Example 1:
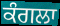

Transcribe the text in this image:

ਕੰਗਲਾ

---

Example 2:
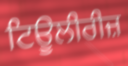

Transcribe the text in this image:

ਟਿਊਲੀਰੀਜ਼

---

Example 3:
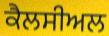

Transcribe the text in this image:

ਕੈਲਸੀਅਲ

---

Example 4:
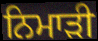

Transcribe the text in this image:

ਨਿਮਾੜੀ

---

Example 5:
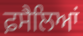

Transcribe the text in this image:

ਫ਼ਸੈਲਿਆਂ